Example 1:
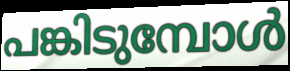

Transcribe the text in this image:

പങ്കിടുമ്പോൾ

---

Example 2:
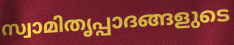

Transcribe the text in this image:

സ്വാമിതൃപ്പാദങ്ങളുടെ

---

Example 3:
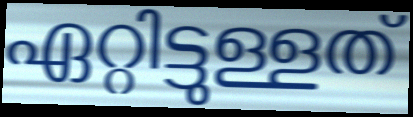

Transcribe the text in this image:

ഏറ്റിട്ടുള്ളത്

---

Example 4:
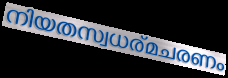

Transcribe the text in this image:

നിയതസ്വധര്മചരണം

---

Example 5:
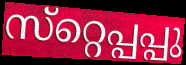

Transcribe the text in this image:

സ്‌റ്റെപ്പപ്പു